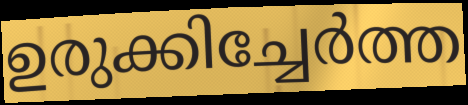
ഉരുക്കിച്ചേർത്ത